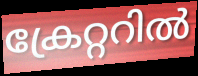
ക്രേറ്ററിൽ